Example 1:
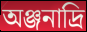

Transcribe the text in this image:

অঞ্জনাদ্রি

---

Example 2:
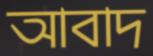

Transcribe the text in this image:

আবাদ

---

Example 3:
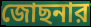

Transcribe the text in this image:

জোছনার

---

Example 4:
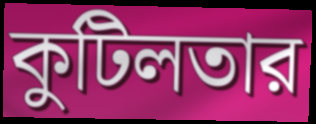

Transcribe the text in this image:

কুটিলতার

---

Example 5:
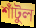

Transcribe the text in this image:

শাঁটুল